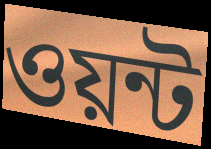
ওয়ন্ট